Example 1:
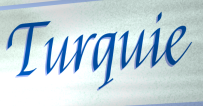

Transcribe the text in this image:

Turquie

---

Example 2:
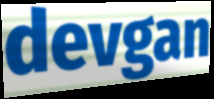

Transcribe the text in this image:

devgan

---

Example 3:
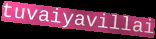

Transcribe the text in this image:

tuvaiyavillai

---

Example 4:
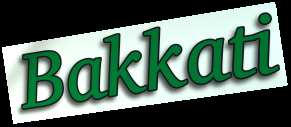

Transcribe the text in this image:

Bakkati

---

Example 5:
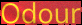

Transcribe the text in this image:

Odour